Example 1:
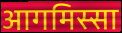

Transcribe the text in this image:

आगमिस्सा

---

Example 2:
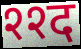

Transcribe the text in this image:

श्श्द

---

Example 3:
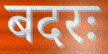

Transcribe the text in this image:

बदरः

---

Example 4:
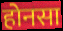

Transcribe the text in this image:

होनसा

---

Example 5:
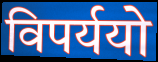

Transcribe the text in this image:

विपर्ययो